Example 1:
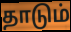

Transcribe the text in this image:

தாடும்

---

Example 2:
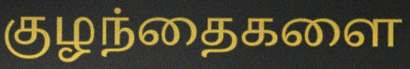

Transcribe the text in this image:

குழந்தைகளை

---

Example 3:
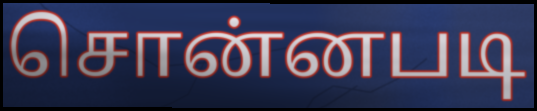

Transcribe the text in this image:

சொன்னபடி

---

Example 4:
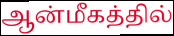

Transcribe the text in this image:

ஆன்மீகத்தில்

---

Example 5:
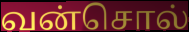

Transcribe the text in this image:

வன்சொல்